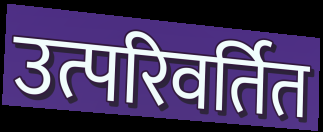
उत्परिवर्तित